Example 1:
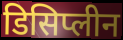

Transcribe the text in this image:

डिसिप्लीन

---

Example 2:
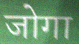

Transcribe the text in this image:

जोगा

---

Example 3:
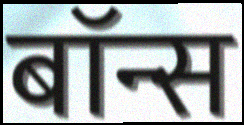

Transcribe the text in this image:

बॉन्स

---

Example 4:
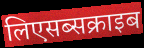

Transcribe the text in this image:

लिएसब्सक्राइब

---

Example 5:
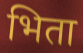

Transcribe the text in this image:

भिता